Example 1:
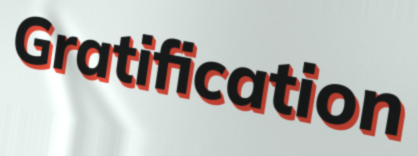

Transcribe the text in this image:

Gratification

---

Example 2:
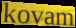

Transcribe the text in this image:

kovam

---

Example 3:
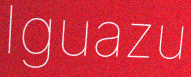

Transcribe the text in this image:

Iguazu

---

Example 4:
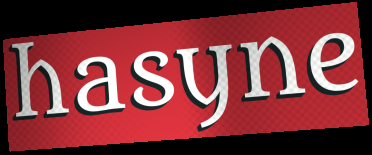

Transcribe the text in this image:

hasyne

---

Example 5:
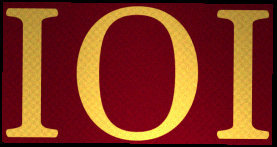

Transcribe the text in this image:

IOI